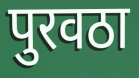
पुरवठा